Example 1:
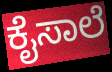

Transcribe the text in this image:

ಕೈಸಾಲೆ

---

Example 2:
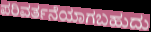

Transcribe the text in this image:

ಪರಿವರ್ತನೆಯಾಗಬಹುದು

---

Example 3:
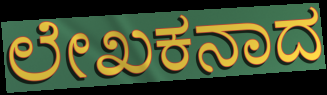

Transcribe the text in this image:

ಲೇಖಕನಾದ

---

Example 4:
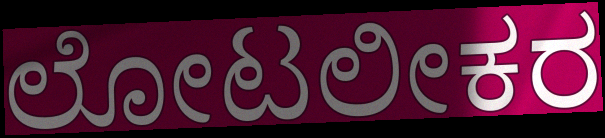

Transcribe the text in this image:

ಲೋಟಲೀಕರ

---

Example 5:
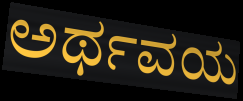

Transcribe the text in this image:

ಅರ್ಥವಯ